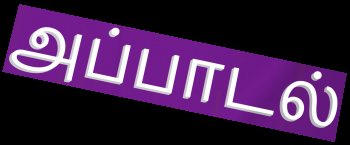
அப்பாடல்